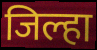
जिल्हा